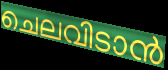
ചെലവിടാൻ